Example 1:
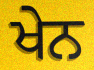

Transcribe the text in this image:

ਖੇਨ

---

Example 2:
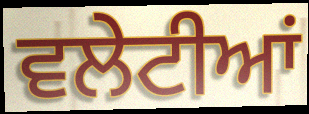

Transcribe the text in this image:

ਵਲੇਟੀਆਂ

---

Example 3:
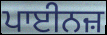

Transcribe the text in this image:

ਪਾਈਨਜ਼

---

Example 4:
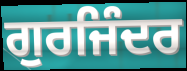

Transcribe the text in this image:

ਗੁਰਜਿੰਦਰ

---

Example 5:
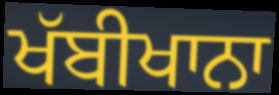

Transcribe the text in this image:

ਖੱਬੀਖਾਨਾ